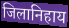
जिलानिहाय